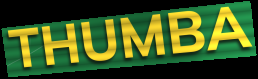
THUMBA